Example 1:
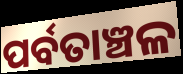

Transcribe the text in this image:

ପର୍ବତାଞ୍ଚଳ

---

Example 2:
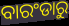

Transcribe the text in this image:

ବାରଂଡାରୁ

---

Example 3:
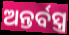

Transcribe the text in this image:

ଅନ୍ତର୍ବସ୍ତ୍ର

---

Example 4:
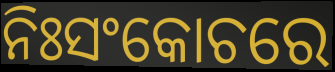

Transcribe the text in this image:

ନିଃସଂକୋଚରେ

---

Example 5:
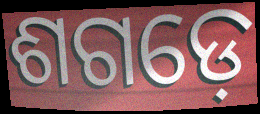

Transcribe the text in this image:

ଶଗଡ଼େ